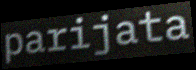
parijata